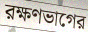
রক্ষণভাগের